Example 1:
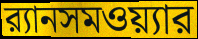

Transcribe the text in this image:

র‍্যানসমওয়্যার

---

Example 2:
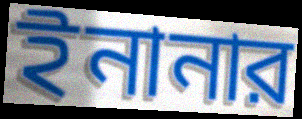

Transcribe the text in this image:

ইনানার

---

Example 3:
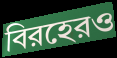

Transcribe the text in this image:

বিরহেরও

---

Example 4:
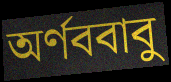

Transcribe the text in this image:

অর্ণববাবু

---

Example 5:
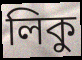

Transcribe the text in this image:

লিকু